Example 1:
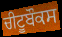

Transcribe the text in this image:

ਚੀਟੂਬੌਕਸ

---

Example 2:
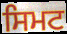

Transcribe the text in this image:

ਸਿਮਟ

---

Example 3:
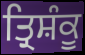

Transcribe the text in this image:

ਤ੍ਰਿਸ਼ੰਕੂ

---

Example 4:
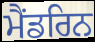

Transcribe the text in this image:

ਮੈਂਡਰਿਨ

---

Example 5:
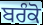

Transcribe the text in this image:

ਬਰੰਕੋ